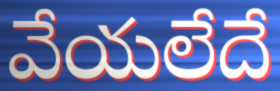
వేయలేదే